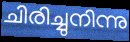
ചിരിച്ചുനിന്നു